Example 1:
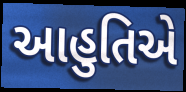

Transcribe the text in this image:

આહુતિએ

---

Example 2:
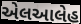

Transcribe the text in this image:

એલઆલેહ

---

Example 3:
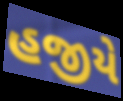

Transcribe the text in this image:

હજીયે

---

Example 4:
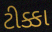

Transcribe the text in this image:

ટીક્કા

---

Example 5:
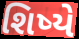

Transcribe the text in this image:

શિષ્યે